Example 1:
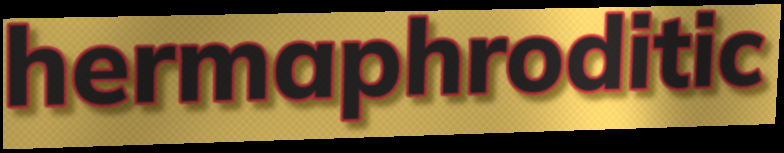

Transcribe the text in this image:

hermaphroditic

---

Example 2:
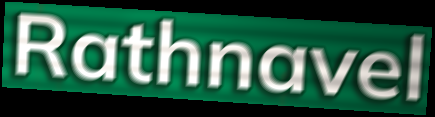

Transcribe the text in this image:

Rathnavel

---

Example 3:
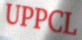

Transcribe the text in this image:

UPPCL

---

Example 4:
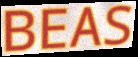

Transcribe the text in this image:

BEAS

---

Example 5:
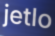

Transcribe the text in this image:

jetlo